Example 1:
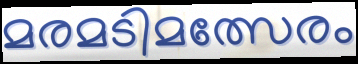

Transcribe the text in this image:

മരമടിമത്സേരം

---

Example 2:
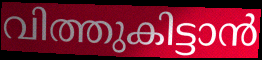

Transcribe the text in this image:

വിത്തുകിട്ടാൻ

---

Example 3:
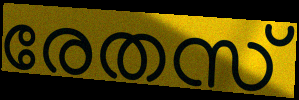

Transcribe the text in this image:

രേതസ്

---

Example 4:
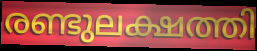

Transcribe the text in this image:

രണ്ടുലക്ഷത്തി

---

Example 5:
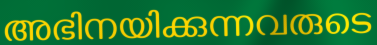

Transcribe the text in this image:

അഭിനയിക്കുന്നവരുടെ